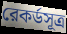
রেকর্ডসূত্র